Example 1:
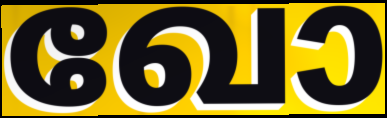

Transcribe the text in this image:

ഖോ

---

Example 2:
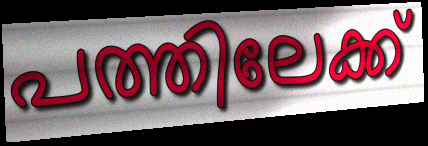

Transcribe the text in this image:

പത്തിലേക്ക്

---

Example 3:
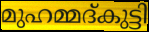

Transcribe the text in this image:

മുഹമ്മദ്കുട്ടി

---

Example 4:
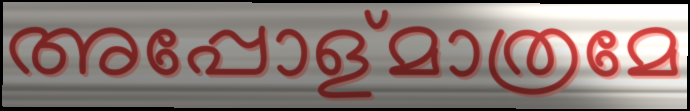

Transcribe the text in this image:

അപ്പോള്മാത്രമേ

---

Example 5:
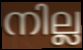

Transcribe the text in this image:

നില്ല